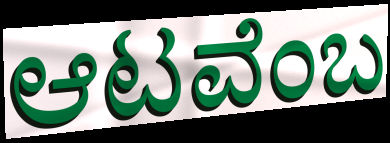
ಆಟವೆಂಬ